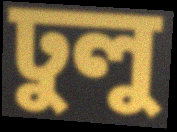
ঢুলু